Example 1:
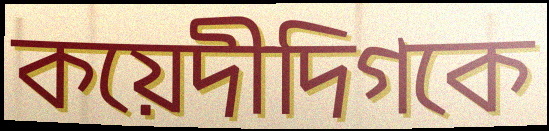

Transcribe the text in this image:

কয়েদীদিগকে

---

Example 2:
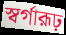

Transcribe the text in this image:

স্বর্গারূঢ়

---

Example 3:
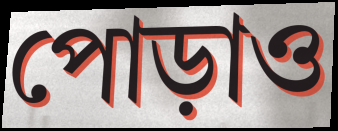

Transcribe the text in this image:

পোড়াও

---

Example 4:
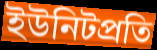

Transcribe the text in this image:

ইউনিটপ্রতি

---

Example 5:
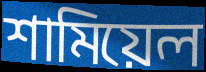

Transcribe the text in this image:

শামিয়েল